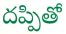
దప్పితో